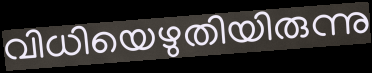
വിധിയെഴുതിയിരുന്നു